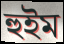
হুইম